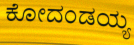
ಕೋದಂಡಯ್ಯ